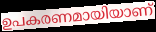
ഉപകരണമായിയാണ്